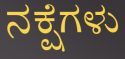
ನಕ್ಷೆಗಳು